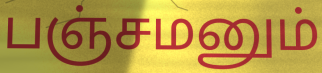
பஞ்சமனும்